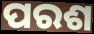
ପରଶ